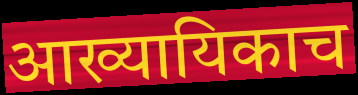
आख्यायिकाच